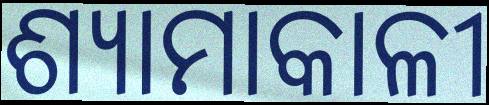
ଶ୍ୟାମାକାଳୀ